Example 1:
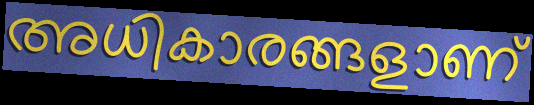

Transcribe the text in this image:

അധികാരങ്ങളാണ്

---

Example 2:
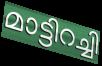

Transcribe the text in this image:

മാട്ടിറച്ചി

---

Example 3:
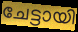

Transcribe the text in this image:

ചേട്ടായി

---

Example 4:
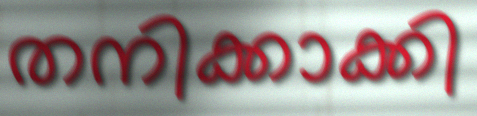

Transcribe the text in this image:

തനിക്കാക്കി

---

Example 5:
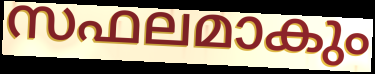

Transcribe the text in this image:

സഫലമാകും